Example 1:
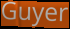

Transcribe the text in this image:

Guyer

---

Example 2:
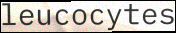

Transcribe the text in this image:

leucocytes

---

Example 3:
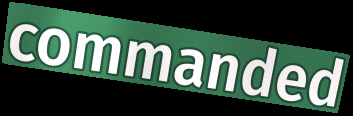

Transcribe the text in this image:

commanded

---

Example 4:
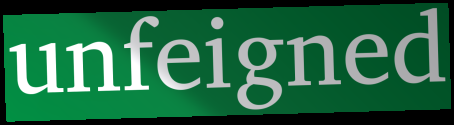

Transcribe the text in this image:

unfeigned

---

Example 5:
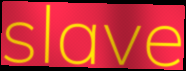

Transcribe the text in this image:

slave